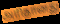
அரிதானது